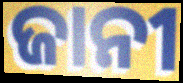
ଜାନୀ